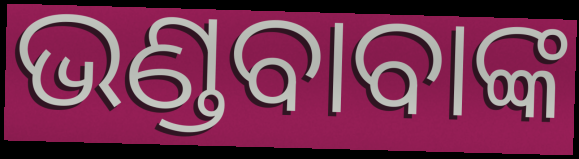
ଭଣ୍ଡବାବାଙ୍କ